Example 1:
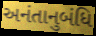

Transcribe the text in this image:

અનંતાનુબંધિ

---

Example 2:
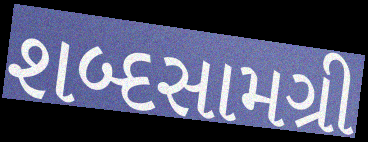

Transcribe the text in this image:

શબ્દસામગ્રી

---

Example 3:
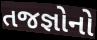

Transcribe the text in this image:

તજજ્ઞોનો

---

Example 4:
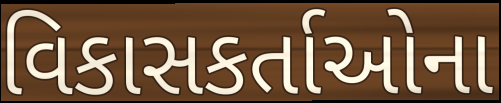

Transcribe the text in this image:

વિકાસકર્તાઓના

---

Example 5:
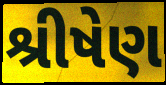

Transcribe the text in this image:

શ્રીષેણ